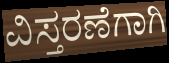
ವಿಸ್ತರಣೆಗಾಗಿ